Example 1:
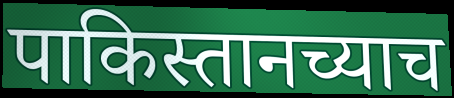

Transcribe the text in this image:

पाकिस्तानच्याच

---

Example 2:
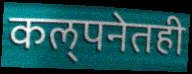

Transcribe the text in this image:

कल्पनेतही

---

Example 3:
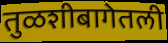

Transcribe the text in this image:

तुळशीबागेतली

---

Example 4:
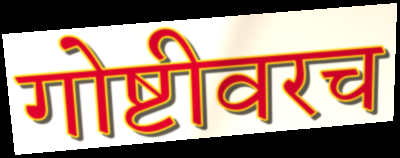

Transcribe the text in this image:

गोष्टीवरच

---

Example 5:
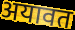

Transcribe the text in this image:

अयावत